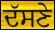
ਦੱਸਣੇ